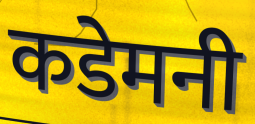
कडेमनी